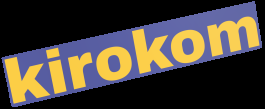
kirokom